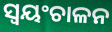
ସ୍ବୟଂଚାଳନ